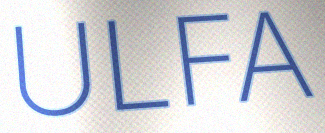
ULFA